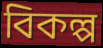
বিকল্প